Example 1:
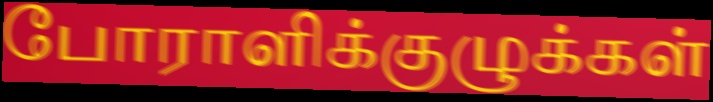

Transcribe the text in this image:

போராளிக்குழுக்கள்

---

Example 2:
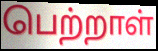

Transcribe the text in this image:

பெற்றாள்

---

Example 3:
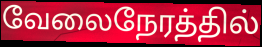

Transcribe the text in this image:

வேலைநேரத்தில்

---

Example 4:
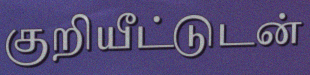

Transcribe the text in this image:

குறியீட்டுடன்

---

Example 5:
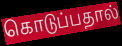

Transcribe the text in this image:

கொடுப்பதால்